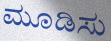
ಮೂಡಿಸು